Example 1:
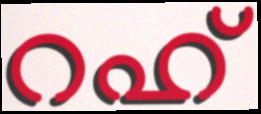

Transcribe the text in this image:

റഹ്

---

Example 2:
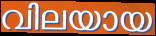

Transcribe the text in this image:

വിലയായ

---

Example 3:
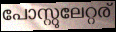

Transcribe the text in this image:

പോസ്റ്റുലേറ്റര്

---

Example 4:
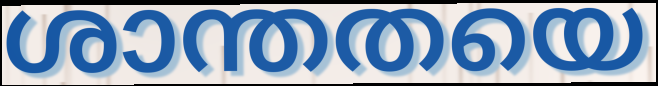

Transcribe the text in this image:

ശാന്തതയെ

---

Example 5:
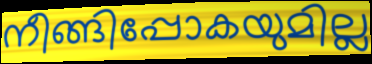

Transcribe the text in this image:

നീങ്ങിപ്പോകയുമില്ല